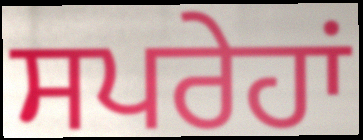
ਸਪਰੇਹਾਂ